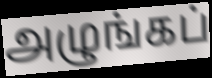
அழுங்கப்